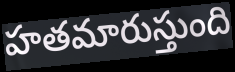
హతమారుస్తుంది